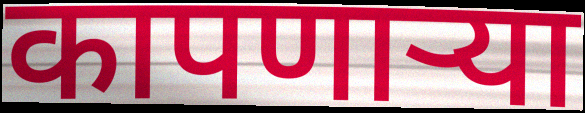
कापणाऱ्या